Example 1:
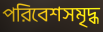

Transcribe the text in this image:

পরিবেশসমৃদ্ধ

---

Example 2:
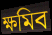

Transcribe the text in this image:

ক্ষমিব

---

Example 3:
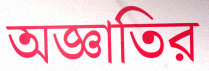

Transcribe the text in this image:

অজ্ঞাতির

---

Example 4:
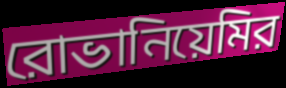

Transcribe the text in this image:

রোভানিয়েমির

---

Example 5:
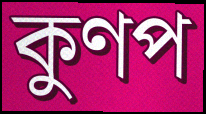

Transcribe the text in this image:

কুণপ